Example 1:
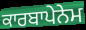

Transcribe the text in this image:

ਕਾਰਬਾਪੇਨੇਮ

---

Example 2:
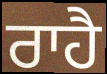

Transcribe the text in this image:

ਰਾਹੈ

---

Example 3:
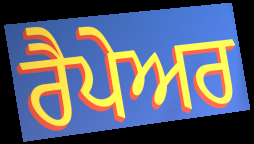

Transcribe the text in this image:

ਰੈਪੇਅਰ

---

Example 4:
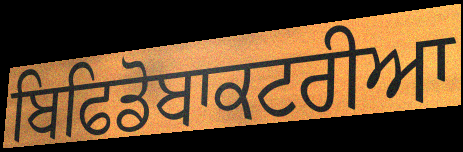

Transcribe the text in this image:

ਬਿਫਿਡੋਬਾਕਟਰੀਆ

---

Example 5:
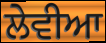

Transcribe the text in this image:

ਲੇਵੀਆ